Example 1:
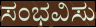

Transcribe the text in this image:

ಸಂಭವಿಸು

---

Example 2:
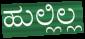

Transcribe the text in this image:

ಹುಲ್ಲಿಲ್ಲ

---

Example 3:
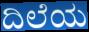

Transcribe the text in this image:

ದಿಲೆಯ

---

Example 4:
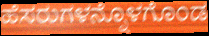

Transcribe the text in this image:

ಹೆಸರುಗಳನ್ನೊಳಗೊಂಡ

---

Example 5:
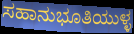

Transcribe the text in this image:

ಸಹಾನುಭೂತಿಯುಳ್ಳ